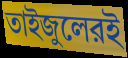
তাইজুলেরই